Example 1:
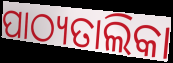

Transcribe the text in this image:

ପାଠ୍ୟତାଲିକା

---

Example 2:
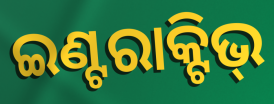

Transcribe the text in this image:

ଇଣ୍ଟରାକ୍ଟିଭ୍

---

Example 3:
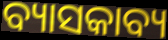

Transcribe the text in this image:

ବ୍ୟାସକାବ୍ୟ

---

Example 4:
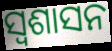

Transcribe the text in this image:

ସ୍ବଶାସନ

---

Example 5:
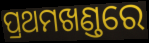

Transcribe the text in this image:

ପ୍ରଥମଖଣ୍ଡରେ